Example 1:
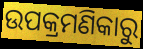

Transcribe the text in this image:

ଉପକ୍ରମଣିକାରୁ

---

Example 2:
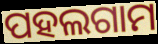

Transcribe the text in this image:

ପହଲଗାମ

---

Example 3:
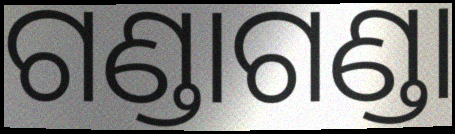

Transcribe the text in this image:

ଗଣ୍ଡାଗଣ୍ଡା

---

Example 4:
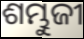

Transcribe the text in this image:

ଶମ୍ଭୁଜୀ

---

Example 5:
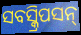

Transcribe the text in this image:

ସବସ୍କ୍ରିପସନ୍